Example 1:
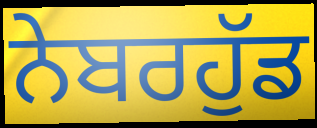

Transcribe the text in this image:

ਨੇਬਰਹੁੱਡ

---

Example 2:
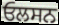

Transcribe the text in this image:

ਓਲਸਨ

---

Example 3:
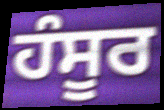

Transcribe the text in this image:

ਹੰਸੂਰ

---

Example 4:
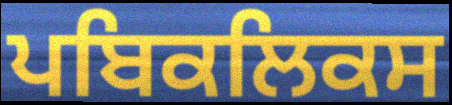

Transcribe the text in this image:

ਪਬਿਕਲਿਕਸ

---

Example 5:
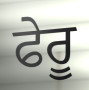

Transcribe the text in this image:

ਫੇਰੂ